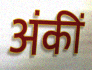
अंकीं